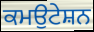
ਕਮਉਟੇਸ਼ਨ